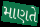
માણતે